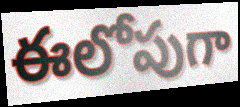
ఈలోపుగా